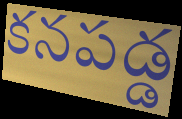
కనపడ్డ